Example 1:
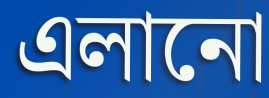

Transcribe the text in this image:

এলানো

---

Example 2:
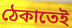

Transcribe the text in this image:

ঠেকাতেই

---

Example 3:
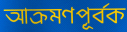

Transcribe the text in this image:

আক্রমণপূর্বক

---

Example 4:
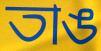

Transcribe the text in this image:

তাঙ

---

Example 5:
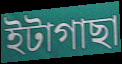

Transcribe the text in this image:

ইটাগাছা